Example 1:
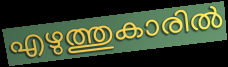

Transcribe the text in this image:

എഴുത്തുകാരിൽ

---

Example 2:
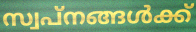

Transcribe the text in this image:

സ്വപ്നങ്ങൾക്ക്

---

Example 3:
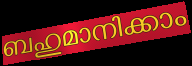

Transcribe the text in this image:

ബഹുമാനിക്കാം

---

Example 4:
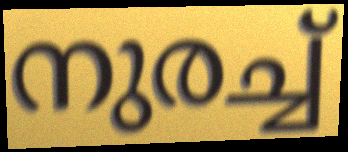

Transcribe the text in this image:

നുരച്ച്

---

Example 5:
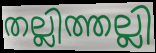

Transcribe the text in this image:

തല്ലിത്തല്ലി